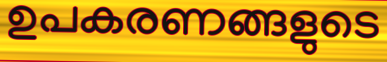
ഉപകരണങ്ങളുടെ